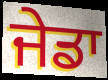
ਜੇਡਾ